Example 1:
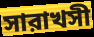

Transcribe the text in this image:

সারাখসী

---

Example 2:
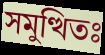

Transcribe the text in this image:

সমুত্থিতঃ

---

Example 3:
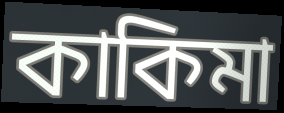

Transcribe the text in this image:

কাকিমা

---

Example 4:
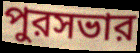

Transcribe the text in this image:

পুরসভার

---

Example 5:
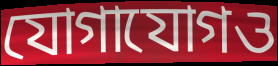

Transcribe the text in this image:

যোগাযোগও